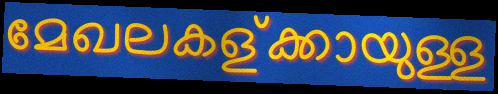
മേഖലകള്ക്കായുള്ള